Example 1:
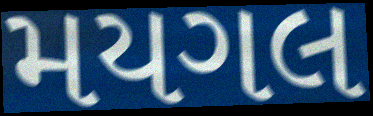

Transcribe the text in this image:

મયગલ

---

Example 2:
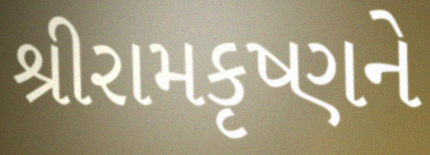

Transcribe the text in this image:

શ્રીરામકૃષ્ણને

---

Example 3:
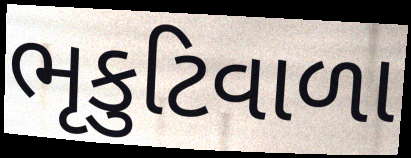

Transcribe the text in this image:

ભૃકુટિવાળા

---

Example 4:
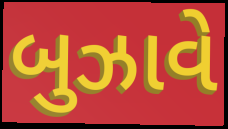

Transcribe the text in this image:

બુઝાવે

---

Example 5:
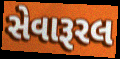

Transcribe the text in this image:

સેવારૂરલ